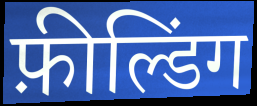
फ़ील्डिंग